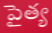
పైత్య